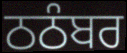
ਠਠੰਬਰ